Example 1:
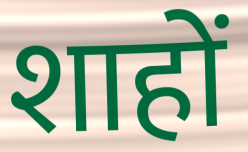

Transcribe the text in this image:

शाहों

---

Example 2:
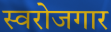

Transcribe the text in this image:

स्‍वरोजगार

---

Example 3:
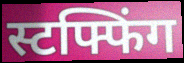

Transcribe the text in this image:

स्टफ्फिंग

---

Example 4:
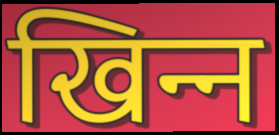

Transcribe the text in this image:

खिन्‍न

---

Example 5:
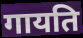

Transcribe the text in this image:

गायति